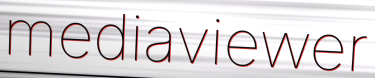
mediaviewer